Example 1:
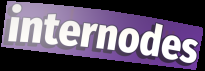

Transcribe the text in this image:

internodes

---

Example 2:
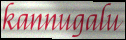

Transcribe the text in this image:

kannugalu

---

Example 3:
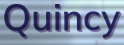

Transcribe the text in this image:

Quincy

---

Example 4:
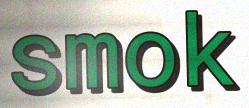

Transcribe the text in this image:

smok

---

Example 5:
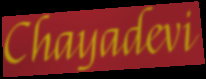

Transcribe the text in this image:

Chayadevi